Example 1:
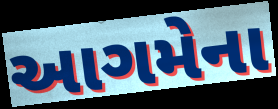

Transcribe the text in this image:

આગમેના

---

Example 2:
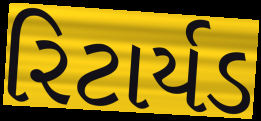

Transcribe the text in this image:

રિટાર્યડ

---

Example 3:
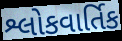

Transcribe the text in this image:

શ્લોકવાર્તિક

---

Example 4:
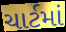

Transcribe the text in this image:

ચાર્ટમાં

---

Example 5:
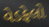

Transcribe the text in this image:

વેડફેલો